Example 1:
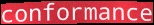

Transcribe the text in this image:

conformance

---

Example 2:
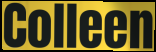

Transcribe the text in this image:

Colleen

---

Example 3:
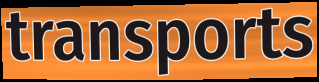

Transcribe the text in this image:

transports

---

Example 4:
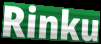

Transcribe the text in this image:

Rinku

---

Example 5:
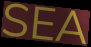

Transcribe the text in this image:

SEA